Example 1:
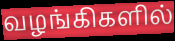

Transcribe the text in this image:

வழங்கிகளில்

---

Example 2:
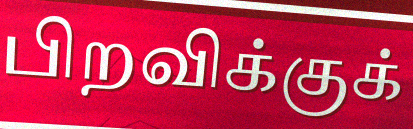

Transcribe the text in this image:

பிறவிக்குக்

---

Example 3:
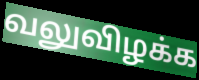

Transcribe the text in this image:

வலுவிழக்க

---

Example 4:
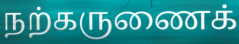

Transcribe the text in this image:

நற்கருணைக்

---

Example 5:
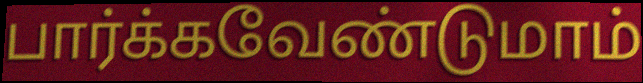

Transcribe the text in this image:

பார்க்கவேண்டுமாம்